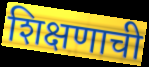
शिक्षणाची